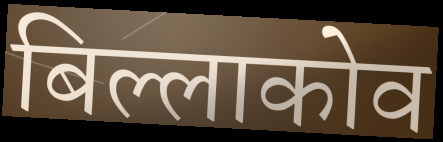
बिल्लाकोव